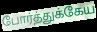
போர்த்துக்கேய